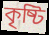
কৃষ্টি